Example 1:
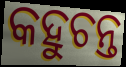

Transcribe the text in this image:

କହୁଚନ୍ତ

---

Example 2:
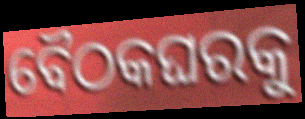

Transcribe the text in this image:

ବୈଠକଘରକୁ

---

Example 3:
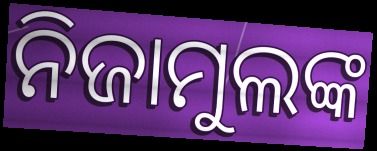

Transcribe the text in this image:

ନିଜାମୁଲଙ୍କ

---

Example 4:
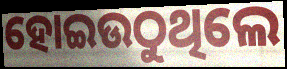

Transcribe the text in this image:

ହୋଇଉଠୁଥିଲେ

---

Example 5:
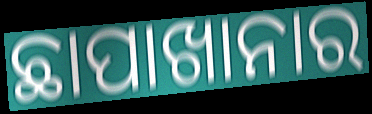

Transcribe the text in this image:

ଛାପାଖାନାର